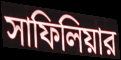
সাফিলিয়ার